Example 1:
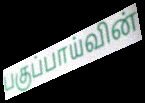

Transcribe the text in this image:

பகுப்பாய்வின்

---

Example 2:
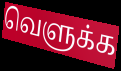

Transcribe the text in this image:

வெளுக்க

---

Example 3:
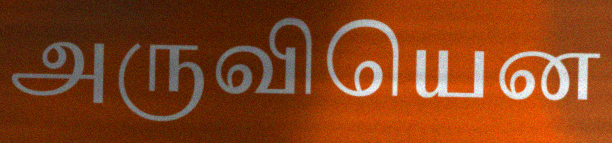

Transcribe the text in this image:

அருவியென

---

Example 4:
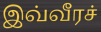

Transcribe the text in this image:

இவ்வீரச்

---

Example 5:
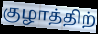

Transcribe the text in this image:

குழாத்திற்